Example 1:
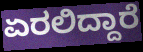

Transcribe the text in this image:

ಏರಲಿದ್ದಾರೆ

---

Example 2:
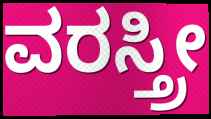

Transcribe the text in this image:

ವರಸ್ತ್ರೀ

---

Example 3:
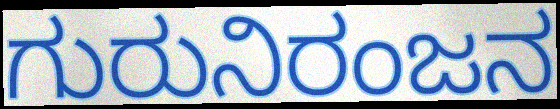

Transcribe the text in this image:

ಗುರುನಿರಂಜನ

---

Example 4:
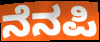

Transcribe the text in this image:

ನೆನಪಿ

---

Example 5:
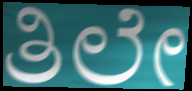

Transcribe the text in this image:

ತಿಲೇ